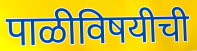
पाळीविषयीची